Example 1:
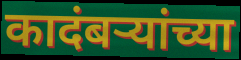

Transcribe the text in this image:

कादंबऱ्यांच्या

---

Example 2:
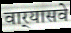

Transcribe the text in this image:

वार्यासवे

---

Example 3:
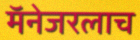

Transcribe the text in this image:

मॅनेजरलाच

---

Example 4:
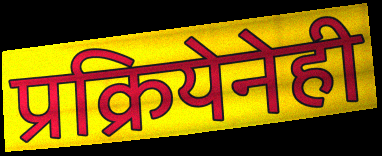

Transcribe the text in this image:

प्रक्रियेनेही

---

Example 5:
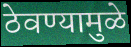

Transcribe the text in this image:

ठेवण्यामुळे